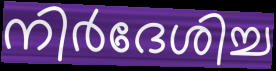
നിർദേശിച്ച